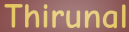
Thirunal